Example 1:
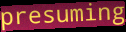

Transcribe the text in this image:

presuming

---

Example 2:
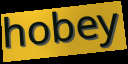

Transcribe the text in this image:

hobey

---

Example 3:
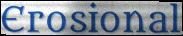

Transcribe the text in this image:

Erosional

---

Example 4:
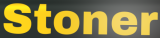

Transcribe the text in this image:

Stoner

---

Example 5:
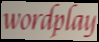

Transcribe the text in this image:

wordplay